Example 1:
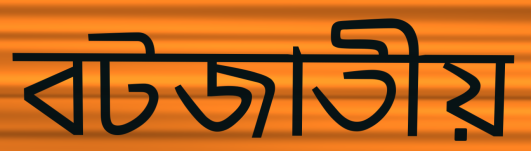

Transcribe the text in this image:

বটজাতীয়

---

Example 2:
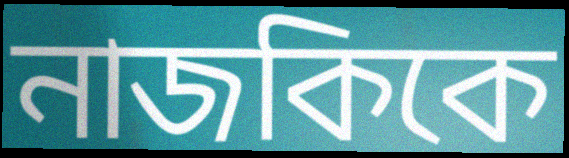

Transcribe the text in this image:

নাজকিকে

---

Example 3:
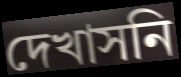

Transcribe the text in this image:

দেখাসনি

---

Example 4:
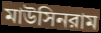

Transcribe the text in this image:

মাউসিনরাম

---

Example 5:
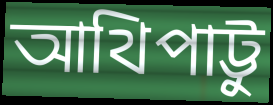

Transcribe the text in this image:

আথিপাট্টু